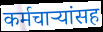
कर्मचाऱ्यांसह